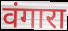
वंगारा